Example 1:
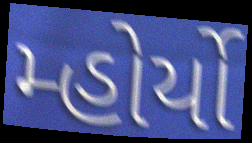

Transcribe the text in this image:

મ્હોર્યો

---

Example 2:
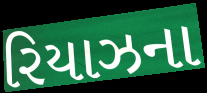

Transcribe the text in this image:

રિયાઝના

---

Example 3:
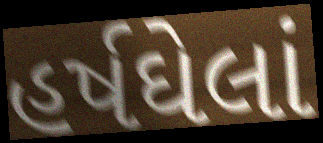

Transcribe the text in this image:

હર્ષઘેલાં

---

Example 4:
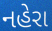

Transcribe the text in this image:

નહેરા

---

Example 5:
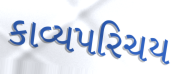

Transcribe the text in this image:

કાવ્યપરિચય